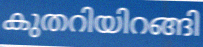
കുതറിയിറങ്ങി